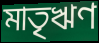
মাতৃঋণ